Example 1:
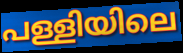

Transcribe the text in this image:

പള്ളിയിലെ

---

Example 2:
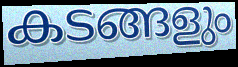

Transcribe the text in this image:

കടങ്ങളും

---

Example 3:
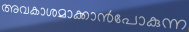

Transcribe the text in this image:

അവകാശമാക്കാൻപോകുന്ന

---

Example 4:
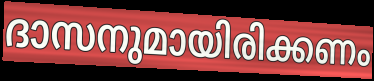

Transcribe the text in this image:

ദാസനുമായിരിക്കണം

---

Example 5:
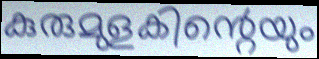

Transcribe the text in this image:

കുരുമുളകിന്റെയും